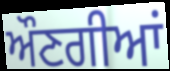
ਔਣਗੀਆਂ